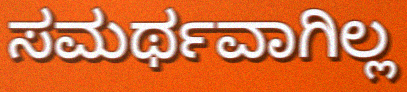
ಸಮರ್ಥವಾಗಿಲ್ಲ